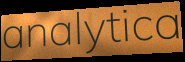
analytica